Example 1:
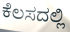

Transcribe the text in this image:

ಕೆಲಸದಲ್ಲಿ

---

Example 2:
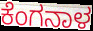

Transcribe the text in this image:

ಕೆಂಗನಾಳ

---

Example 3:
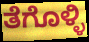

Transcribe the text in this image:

ತೆಗೊಳ್ಳಿ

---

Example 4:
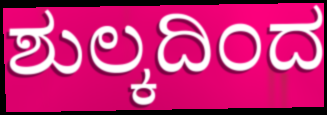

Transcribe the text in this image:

ಶುಲ್ಕದಿಂದ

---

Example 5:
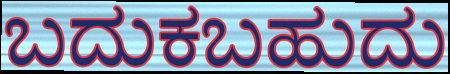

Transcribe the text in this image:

ಬದುಕಬಹುದು